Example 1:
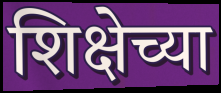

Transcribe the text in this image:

शिक्षेच्या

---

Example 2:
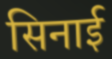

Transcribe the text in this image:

सिनाई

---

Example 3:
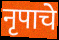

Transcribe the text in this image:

नृपाचे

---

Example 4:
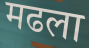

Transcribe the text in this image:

मढला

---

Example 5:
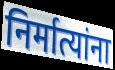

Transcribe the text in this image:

निर्मात्यांना